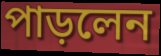
পাড়লেন